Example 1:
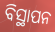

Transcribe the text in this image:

ବିସ୍ଥାପନ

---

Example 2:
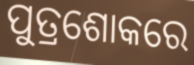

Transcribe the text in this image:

ପୁତ୍ରଶୋକରେ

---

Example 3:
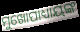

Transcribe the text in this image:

ମୁଖୋପାଧ୍ୟାୟଙ୍କ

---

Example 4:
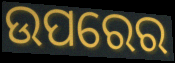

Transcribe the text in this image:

ଉପରେର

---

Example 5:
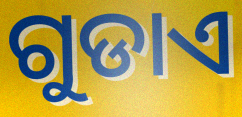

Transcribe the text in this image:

ଗୁଡାଏ